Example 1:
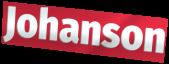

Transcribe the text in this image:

Johanson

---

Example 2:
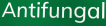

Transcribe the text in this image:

Antifungal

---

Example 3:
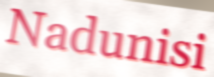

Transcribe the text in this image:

Nadunisi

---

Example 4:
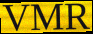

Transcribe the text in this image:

VMR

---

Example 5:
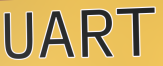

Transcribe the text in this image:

UART